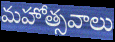
మహోత్సవాలు